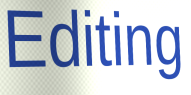
Editing